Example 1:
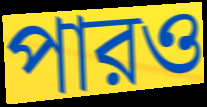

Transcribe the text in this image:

পারও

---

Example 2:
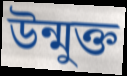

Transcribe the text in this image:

উন্মুক্ত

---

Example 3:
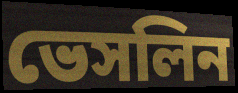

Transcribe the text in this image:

ভেসলিন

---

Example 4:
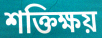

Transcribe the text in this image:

শক্তিক্ষয়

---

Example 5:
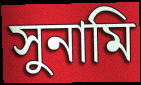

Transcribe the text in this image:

সুনামি